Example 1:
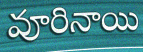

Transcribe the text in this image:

వూరినాయి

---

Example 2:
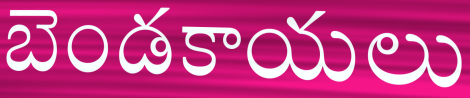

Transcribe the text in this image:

బెండకాయలు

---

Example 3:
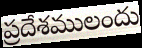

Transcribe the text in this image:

ప్రదేశములందు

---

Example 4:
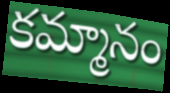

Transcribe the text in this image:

కమ్మానం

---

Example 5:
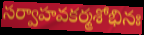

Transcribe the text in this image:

సర్వాహవకర్మశోభినః